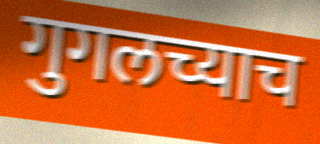
गुगलच्याच